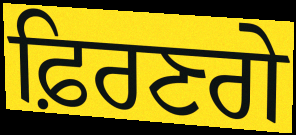
ਫ਼ਿਰਣਗੇ